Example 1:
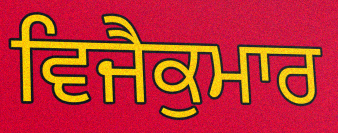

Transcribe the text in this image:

ਵਿਜੈਕੁਮਾਰ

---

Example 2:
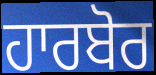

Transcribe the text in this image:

ਹਾਰਬੋਰ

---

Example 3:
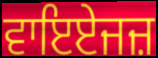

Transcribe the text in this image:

ਵਾਇਏਜਜ਼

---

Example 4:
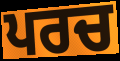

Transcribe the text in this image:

ਪਰਚ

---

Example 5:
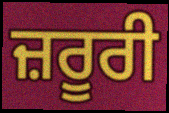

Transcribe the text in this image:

ਜ਼ਰੂਰੀ